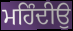
ਮਹਿੰਦੀਉ